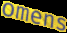
omens